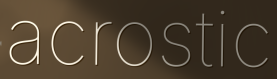
acrostic